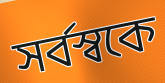
সর্বস্বকে